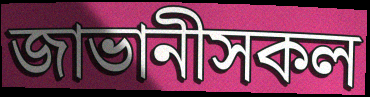
জাভানীসকল